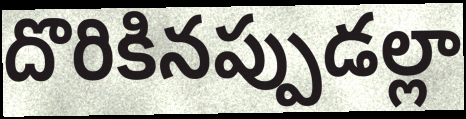
దొరికినప్పుడల్లా